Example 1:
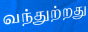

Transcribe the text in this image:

வந்துற்றது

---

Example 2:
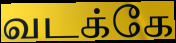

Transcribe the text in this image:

வடக்கே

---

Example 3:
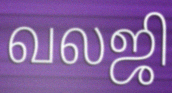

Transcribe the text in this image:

வலஜி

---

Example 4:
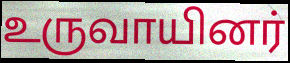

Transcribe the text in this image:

உருவாயினர்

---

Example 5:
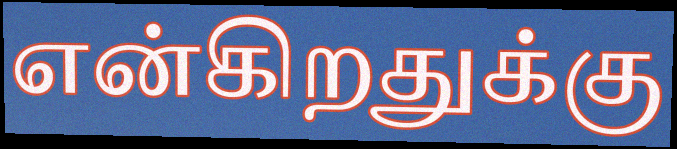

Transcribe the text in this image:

என்கிறதுக்கு